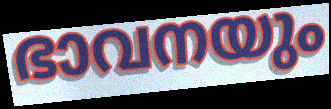
ഭാവനയും